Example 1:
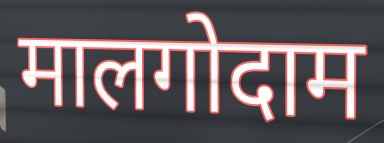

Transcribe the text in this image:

मालगोदाम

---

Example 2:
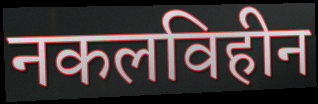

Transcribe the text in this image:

नकलविहीन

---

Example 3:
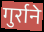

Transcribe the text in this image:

गुर्राने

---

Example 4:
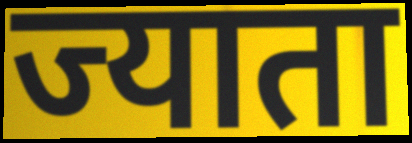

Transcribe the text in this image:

ज्याता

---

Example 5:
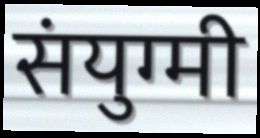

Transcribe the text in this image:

संयुग्मी